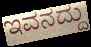
ಇವನದ್ದು